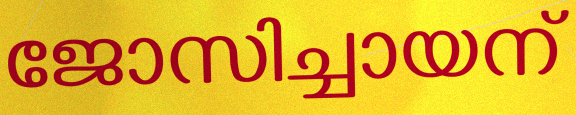
ജോസിച്ചായന്